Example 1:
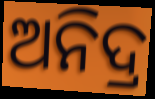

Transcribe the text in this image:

ଅନିଦ୍ର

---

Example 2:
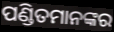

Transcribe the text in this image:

ପଣ୍ଡିତମାନଙ୍କର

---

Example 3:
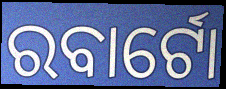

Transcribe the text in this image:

ରବାର୍ଟୋ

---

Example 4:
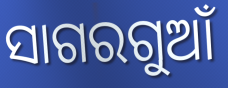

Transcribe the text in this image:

ସାଗରଗୁଆଁ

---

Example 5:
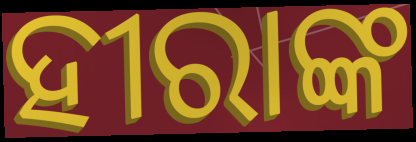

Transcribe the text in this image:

ହୀରାଙ୍କ